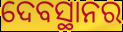
ଦେବସ୍ଥାନର